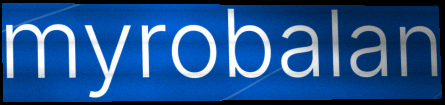
myrobalan